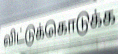
விட்டுக்கொடுக்க